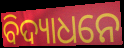
ବିଦ୍ୟାଧନେ